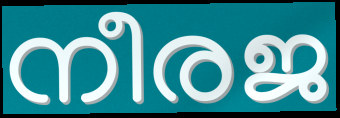
നീരജ